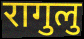
रागुलु